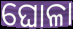
ଘୋଳା